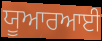
ਯੂਆਰਆਈ